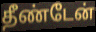
தீண்டேன்